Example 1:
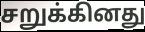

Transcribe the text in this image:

சறுக்கினது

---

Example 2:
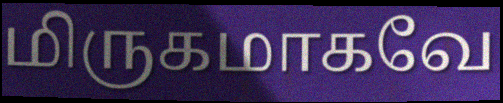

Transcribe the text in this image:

மிருகமாகவே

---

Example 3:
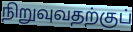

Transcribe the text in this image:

நிறுவுவதற்குப்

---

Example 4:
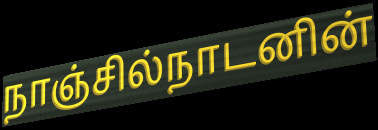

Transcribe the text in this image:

நாஞ்சில்நாடனின்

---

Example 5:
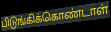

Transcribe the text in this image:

பிடுங்கிக்கொண்டாள்